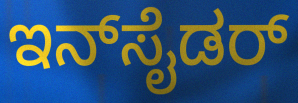
ಇನ್‌ಸೈಡರ್